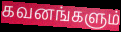
கவனங்களும்